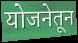
योजनेतून